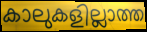
കാലുകളില്ലാത്ത